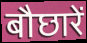
बौछारें